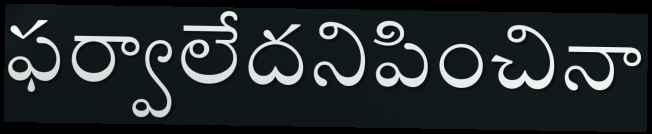
ఫర్వాలేదనిపించినా